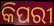
କିପରୀ